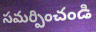
సమర్పించండి